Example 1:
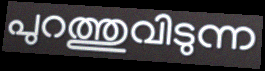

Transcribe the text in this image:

പുറത്തുവിടുന്ന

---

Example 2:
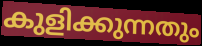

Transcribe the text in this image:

കുളിക്കുന്നതും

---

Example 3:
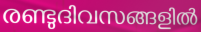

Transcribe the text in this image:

രണ്ടുദിവസങ്ങളിൽ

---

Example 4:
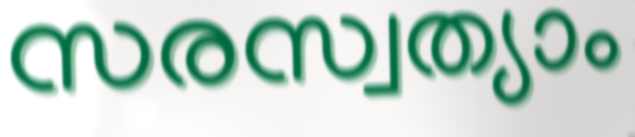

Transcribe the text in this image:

സരസ്വത്യാം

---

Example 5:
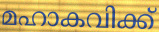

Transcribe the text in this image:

മഹാകവിക്ക്